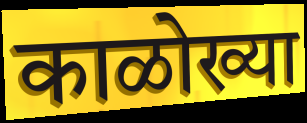
काळोख्या